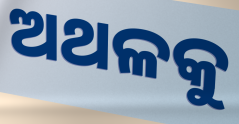
ଅଥଳକୁ